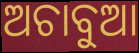
ଅଚାବୁଆ